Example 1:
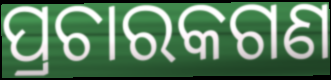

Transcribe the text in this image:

ପ୍ରଚାରକଗଣ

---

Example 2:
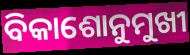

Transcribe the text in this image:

ବିକାଶୋନୁମୁଖୀ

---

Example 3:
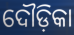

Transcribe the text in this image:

ଦୌଡ଼ିକା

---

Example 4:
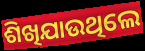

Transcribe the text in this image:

ଶିଖିଯାଉଥିଲେ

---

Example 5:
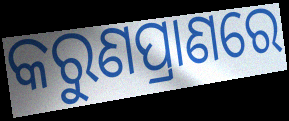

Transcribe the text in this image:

କରୁଣପ୍ରାଣରେ